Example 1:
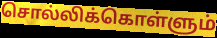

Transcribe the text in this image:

சொல்லிக்கொள்ளும்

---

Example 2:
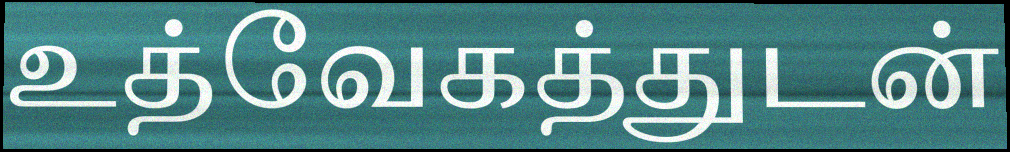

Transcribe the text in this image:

உத்வேகத்துடன்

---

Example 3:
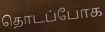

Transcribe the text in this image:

தொடப்போக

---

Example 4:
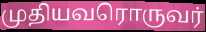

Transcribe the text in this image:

முதியவரொருவர்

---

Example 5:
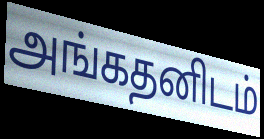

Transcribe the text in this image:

அங்கதனிடம்